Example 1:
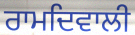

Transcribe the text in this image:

ਰਾਮਦਿਵਾਲੀ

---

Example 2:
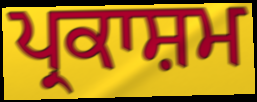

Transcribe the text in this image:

ਪ੍ਰਕਾਸ਼ਮ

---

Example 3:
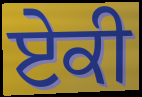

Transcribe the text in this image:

ਏਕੀ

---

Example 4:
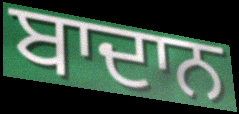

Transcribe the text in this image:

ਬਾਦਾਨ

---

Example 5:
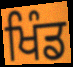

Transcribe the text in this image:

ਖਿੰਡ